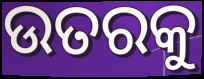
ଉତରକୁ